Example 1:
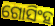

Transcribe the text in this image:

ଗୋସିଂହ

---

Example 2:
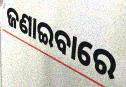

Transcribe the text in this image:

ଜଣାଇବାରେ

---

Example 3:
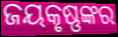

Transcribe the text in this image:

ଜୟକୃଷ୍ଣଙ୍କର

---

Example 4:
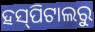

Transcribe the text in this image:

ହସ୍‍ପିଟାଲରୁ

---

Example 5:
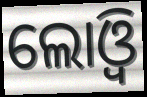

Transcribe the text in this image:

ଲୋଓ୍ବି